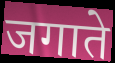
जगाते